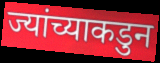
ज्यांच्याकडुन